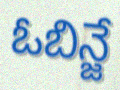
ఓబిన్జే